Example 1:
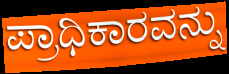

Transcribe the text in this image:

ಪ್ರಾಧಿಕಾರವನ್ನು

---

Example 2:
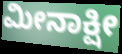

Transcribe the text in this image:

ಮೀನಾಕ್ಷೀ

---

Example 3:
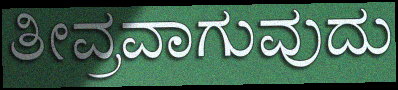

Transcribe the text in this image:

ತೀವ್ರವಾಗುವುದು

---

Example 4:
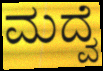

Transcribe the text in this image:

ಮದ್ವೆ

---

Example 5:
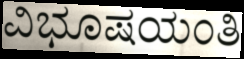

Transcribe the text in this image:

ವಿಭೂಷಯಂತಿ